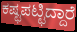
ಕಷ್ಟಪಟ್ಟಿದ್ದಾರೆ